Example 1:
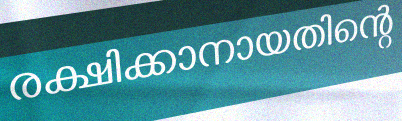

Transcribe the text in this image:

രക്ഷിക്കാനായതിന്റെ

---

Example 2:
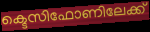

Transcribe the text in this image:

ക്ടെസിഫോണിലേക്ക്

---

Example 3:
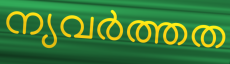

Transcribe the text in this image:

ന്യവർത്തത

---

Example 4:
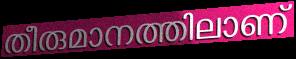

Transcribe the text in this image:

തീരുമാനത്തിലാണ്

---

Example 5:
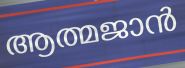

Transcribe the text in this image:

ആത്മജാൻ